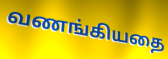
வணங்கியதை